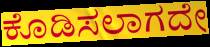
ಕೊಡಿಸಲಾಗದೇ